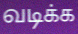
வடிக்க